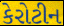
કેરોટીન